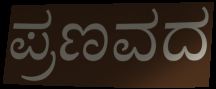
ಪ್ರಣವದ